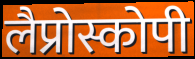
लैप्रोस्कोपी